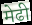
मेढी